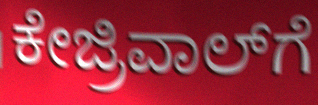
ಕೇಜ್ರಿವಾಲ್‍ಗೆ